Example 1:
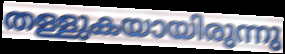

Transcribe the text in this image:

തള്ളുകയായിരുന്നു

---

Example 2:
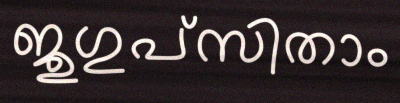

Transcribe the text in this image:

ജുഗുപ്സിതാം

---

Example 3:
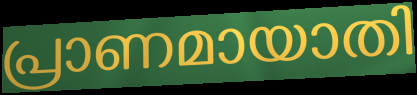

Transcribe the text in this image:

പ്രാണമായാതി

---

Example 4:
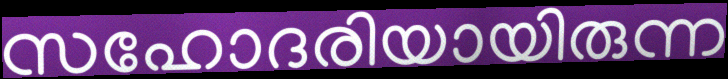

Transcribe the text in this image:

സഹോദരിയായിരുന്ന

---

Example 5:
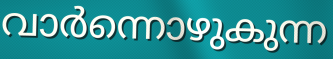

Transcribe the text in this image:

വാർന്നൊഴുകുന്ന